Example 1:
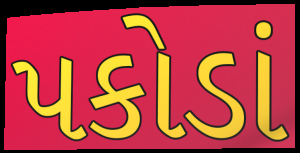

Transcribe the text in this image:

પકોડાં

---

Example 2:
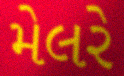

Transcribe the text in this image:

મેલરે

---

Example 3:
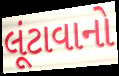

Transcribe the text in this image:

લૂંટાવાનો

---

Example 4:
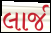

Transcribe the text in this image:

લાર્જ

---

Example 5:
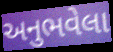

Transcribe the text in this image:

અનુભવેલા